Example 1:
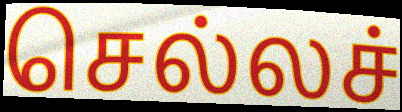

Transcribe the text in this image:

செல்லச்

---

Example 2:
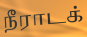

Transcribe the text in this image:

நீராடக்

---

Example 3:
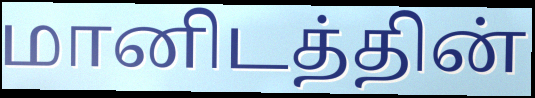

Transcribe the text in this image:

மானிடத்தின்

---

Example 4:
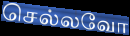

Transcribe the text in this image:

செல்லவோ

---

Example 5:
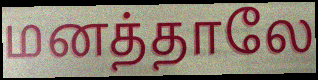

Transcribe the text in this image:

மனத்தாலே